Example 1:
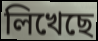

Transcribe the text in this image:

লিখেছে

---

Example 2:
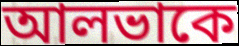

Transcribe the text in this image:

আলভাকে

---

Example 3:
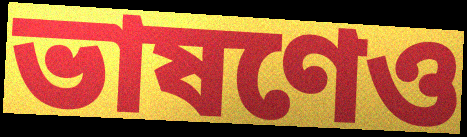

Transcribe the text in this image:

ভাষণেও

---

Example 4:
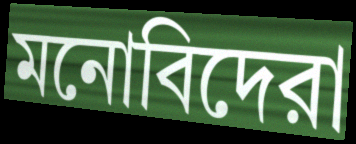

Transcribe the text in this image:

মনোবিদেরা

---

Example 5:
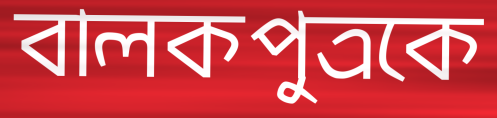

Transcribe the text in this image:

বালকপুত্রকে